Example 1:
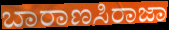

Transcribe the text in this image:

ಬಾರಾಣಸಿರಾಜಾ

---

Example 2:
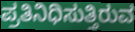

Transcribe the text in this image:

ಪ್ರತಿನಿಧಿಸುತ್ತಿರುವ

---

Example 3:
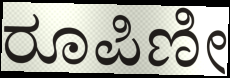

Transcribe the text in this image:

ರೂಪಿಣೀ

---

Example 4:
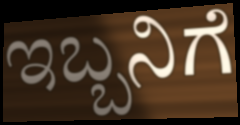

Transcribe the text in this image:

ಇಬ್ಬನಿಗೆ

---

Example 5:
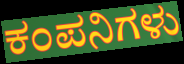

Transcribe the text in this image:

ಕಂಪನಿಗಳು